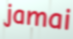
jamai